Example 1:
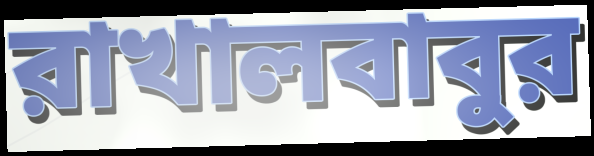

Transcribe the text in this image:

রাখালবাবুর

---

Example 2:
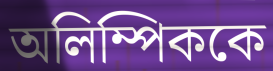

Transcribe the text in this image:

অলিম্পিককে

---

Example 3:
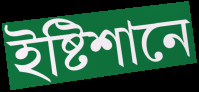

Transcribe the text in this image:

ইষ্টিশানে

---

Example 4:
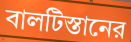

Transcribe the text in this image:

বালটিস্তানের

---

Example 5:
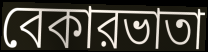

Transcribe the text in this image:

বেকারভাতা